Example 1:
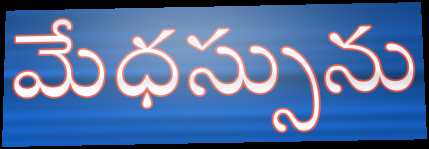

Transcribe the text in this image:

మేధస్సును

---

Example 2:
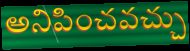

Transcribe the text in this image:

అనిపించవచ్చు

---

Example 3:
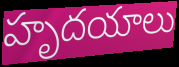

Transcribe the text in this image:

హృదయాలు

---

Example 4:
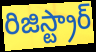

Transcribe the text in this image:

రిజిస్ట్రార్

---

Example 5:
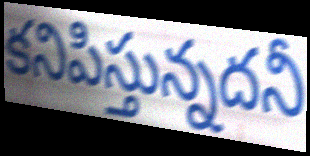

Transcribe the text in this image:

కనిపిస్తున్నదనీ